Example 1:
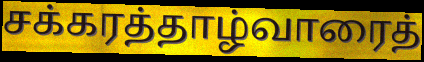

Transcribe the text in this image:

சக்கரத்தாழ்வாரைத்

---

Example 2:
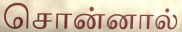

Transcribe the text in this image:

சொன்னால்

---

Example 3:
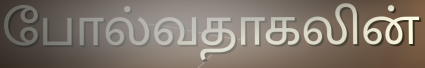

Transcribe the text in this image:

போல்வதாகலின்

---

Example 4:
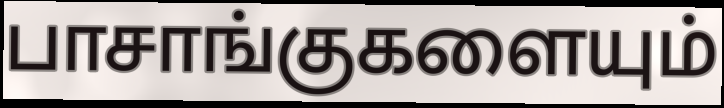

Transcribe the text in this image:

பாசாங்குகளையும்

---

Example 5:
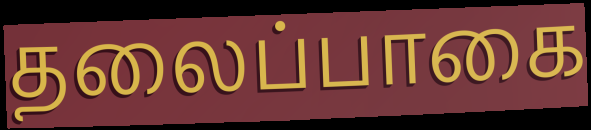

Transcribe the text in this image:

தலைப்பாகை